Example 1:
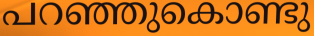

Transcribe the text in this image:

പറഞ്ഞുകൊണ്ടു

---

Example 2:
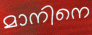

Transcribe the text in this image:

മാനിനെ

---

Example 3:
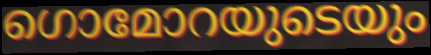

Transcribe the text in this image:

ഗൊമോറയുടെയും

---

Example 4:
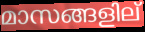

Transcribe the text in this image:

മാസങ്ങളില്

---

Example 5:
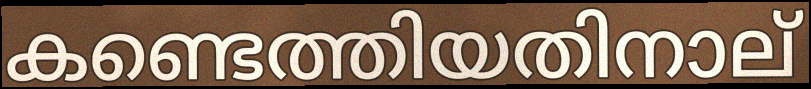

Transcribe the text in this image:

കണ്ടെത്തിയതിനാല്